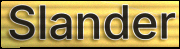
Slander